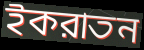
ইকরাতন